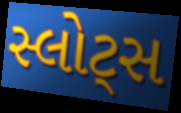
સ્લોટ્સ